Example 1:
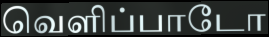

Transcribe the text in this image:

வெளிப்பாடோ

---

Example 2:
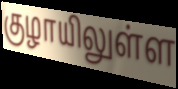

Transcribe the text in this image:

குழாயிலுள்ள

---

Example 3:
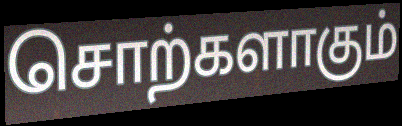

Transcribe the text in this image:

சொற்களாகும்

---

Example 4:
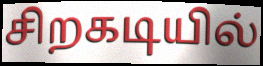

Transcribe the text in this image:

சிறகடியில்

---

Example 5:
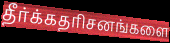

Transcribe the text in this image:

தீர்க்கதரிசனங்களை